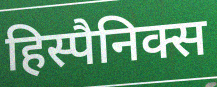
हिस्पैनिक्स